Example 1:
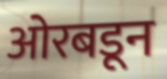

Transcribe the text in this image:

ओरबडून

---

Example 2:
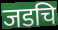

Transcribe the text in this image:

जडचि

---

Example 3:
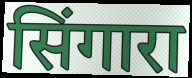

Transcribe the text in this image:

सिंगारा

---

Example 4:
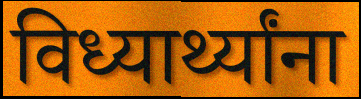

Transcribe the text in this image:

विध्यार्थ्यांना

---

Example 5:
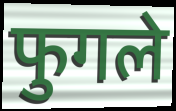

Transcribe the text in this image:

फुगले